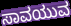
ಸಾವಯುವ